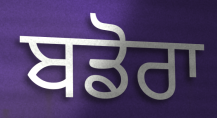
ਬਡੋਰਾ